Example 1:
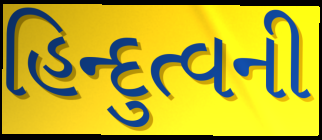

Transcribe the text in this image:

હિન્દુત્વની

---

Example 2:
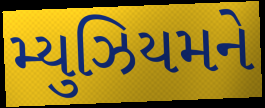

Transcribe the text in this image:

મ્યુઝિયમને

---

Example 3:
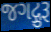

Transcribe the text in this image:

જગદ્ગુરૂ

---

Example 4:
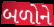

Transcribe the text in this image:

બળોને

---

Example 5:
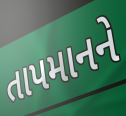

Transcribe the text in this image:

તાપમાનને